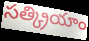
సత్క్రియాం